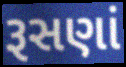
રૂસણાં